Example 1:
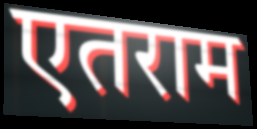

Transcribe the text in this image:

एतराम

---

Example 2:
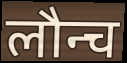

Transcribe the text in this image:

लौन्च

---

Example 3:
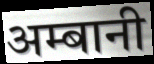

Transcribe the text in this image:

अम्‍बानी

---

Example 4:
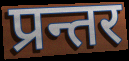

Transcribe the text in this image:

प्रन्तर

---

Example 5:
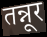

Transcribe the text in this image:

तन्नूर